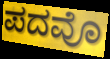
ಪದವೊ